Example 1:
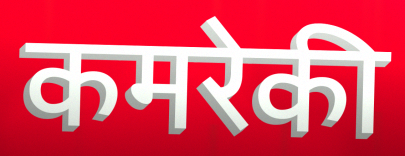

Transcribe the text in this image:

कमरेकी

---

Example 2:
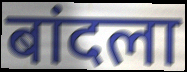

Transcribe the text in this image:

बांदला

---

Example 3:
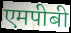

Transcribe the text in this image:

एमपीबी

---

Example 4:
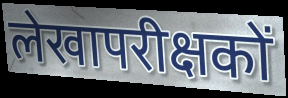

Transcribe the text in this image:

लेखापरीक्षकों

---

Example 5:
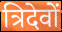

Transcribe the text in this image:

त्रिदेवों